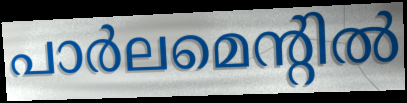
പാർലമെന്റിൽ